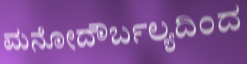
ಮನೋದೌರ್ಬಲ್ಯದಿಂದ